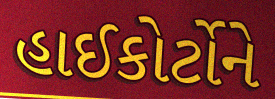
હાઈકોર્ટોને